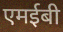
एमईबी